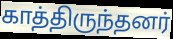
காத்திருந்தனர்